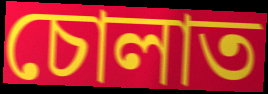
চোলাত